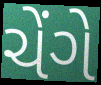
ચેંગે